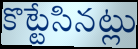
కొట్టేసినట్లు